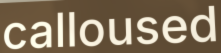
calloused